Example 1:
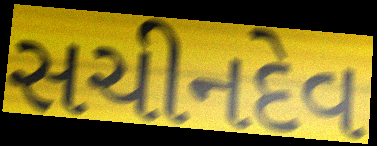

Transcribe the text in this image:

સચીનદેવ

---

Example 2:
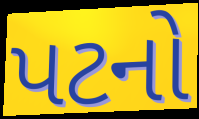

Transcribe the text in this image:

પટનો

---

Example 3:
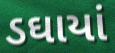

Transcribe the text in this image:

ડઘાયાં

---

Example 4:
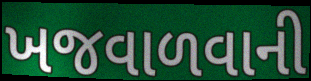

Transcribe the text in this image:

ખજવાળવાની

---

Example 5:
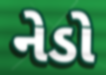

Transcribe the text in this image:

નેડો